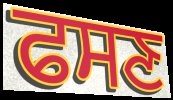
ਫਸਣ